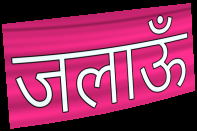
जलाऊँ